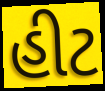
હીટ